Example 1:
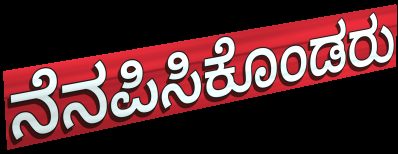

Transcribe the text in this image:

ನೆನಪಿಸಿಕೊಂಡರು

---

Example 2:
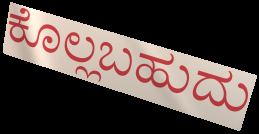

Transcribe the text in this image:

ಕೊಲ್ಲಬಹುದು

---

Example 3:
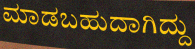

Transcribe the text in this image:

ಮಾಡಬಹುದಾಗಿದ್ದು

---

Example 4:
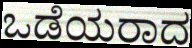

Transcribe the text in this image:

ಒಡೆಯರಾದ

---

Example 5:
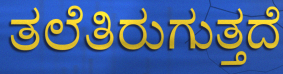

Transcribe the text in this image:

ತಲೆತಿರುಗುತ್ತದೆ